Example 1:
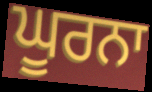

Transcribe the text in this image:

ਘੂਰਨਾ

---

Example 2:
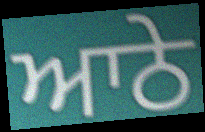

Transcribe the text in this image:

ਆਠੇ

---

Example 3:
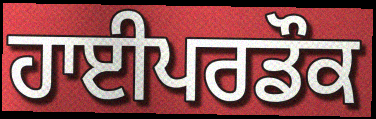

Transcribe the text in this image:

ਹਾਈਪਰਡੌਕ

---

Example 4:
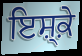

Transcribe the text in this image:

ਇਸ਼੍ਕ਼ੇ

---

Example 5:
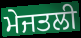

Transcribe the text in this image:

ਮੇਜਤਲੀ